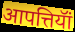
आपत्तियॉं